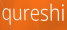
qureshi